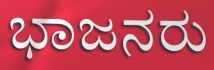
ಭಾಜನರು